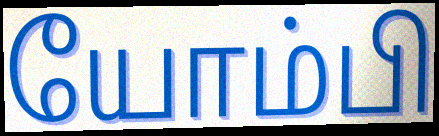
யோம்பி